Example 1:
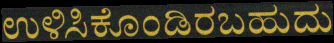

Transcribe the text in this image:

ಉಳಿಸಿಕೊಂಡಿರಬಹುದು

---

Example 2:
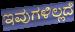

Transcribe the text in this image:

ಇವುಗಳಿಲ್ಲದೆ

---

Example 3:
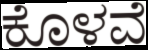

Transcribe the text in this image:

ಕೊಳವೆ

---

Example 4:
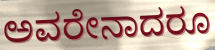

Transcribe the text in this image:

ಅವರೇನಾದರೂ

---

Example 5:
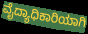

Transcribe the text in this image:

ವೈದ್ಯಾಧಿಕಾರಿಯಾಗಿ